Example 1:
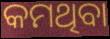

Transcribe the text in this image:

କମଥିବା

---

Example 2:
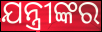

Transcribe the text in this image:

ଯନ୍ତ୍ରୀଙ୍କର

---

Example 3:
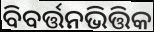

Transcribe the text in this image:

ବିବର୍ତ୍ତନଭିତ୍ତିକ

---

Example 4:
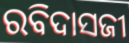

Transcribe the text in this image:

ରବିଦାସଜୀ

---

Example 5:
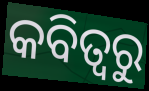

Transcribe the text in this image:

କବିତ୍ଵରୁ